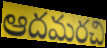
ఆదమరచి